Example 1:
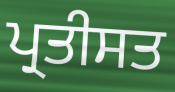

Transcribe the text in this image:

ਪ੍ਰਤੀਸਤ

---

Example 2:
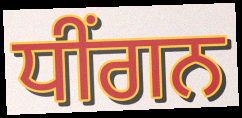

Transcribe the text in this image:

ਧੀਂਗਨ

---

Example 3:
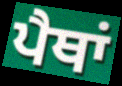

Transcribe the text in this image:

ਪੈਥਾਂ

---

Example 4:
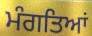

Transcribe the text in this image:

ਮੰਗਤਿਆਂ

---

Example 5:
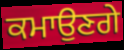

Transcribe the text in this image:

ਕਮਾਉਣਗੇ